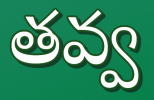
తవ్వ